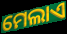
ମେଲାଏ